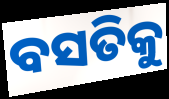
ବସତିକୁ